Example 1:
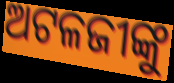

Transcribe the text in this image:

ଅଟଳଜୀଙ୍କୁ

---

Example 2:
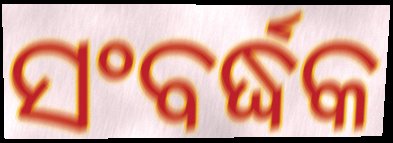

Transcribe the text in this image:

ସଂବର୍ଦ୍ଧକ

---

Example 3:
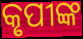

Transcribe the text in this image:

କୃପୀଙ୍କ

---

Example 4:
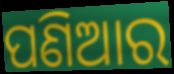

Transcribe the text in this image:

ପଣିଆର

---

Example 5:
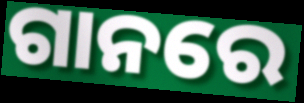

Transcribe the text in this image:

ଗାନରେ